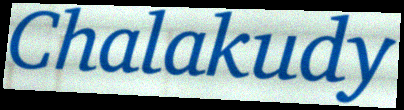
Chalakudy